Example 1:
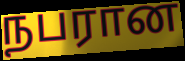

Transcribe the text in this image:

நபரான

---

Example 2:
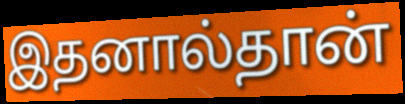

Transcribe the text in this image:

இதனால்தான்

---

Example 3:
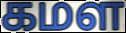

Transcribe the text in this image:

கமள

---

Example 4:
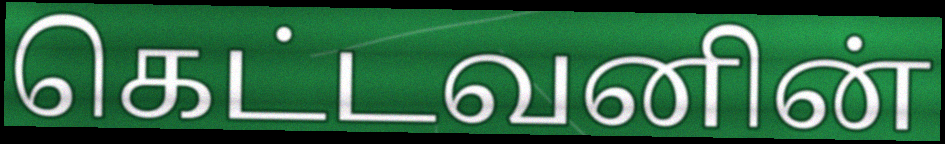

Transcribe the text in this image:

கெட்டவனின்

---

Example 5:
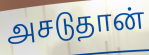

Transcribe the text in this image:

அசடுதான்